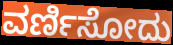
ವರ್ಣಿಸೋದು